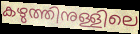
കഴുത്തിനുള്ളിലെ